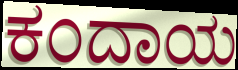
ಕಂದಾಯ